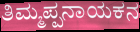
ತಿಮ್ಮಪ್ಪನಾಯಕನ